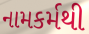
નામકર્મથી